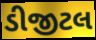
ડીજીટલ